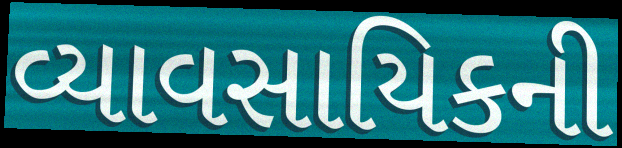
વ્યાવસાયિકની